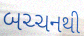
બચ્ચનથી